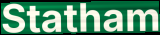
Statham